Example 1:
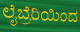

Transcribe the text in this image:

ಲೈಬ್ರೆರಿಯಿಂದ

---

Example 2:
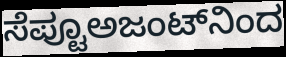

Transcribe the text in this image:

ಸೆಪ್ಟೂಅಜಂಟ್‌ನಿಂದ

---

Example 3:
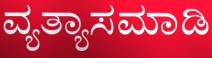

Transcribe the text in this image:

ವ್ಯತ್ಯಾಸಮಾಡಿ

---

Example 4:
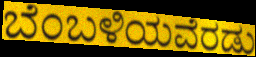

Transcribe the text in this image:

ಬೆಂಬಳಿಯವೆರಡು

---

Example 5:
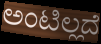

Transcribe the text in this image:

ಅಂಟಿಲ್ಲದೆ